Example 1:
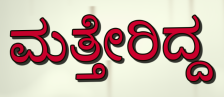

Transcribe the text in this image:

ಮತ್ತೇರಿದ್ದ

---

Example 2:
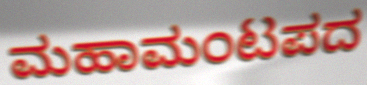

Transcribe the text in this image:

ಮಹಾಮಂಟಪದ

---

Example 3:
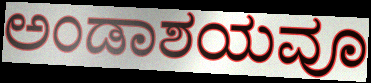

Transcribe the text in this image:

ಅಂಡಾಶಯವೂ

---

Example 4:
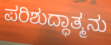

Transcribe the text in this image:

ಪರಿಶುದ್ಧಾತ್ಮನು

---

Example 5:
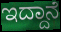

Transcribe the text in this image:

ಇದ್ದಾನೆ